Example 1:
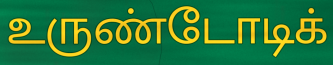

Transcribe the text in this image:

உருண்டோடிக்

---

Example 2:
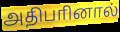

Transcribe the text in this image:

அதிபரினால்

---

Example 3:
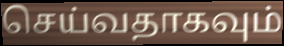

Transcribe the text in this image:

செய்வதாகவும்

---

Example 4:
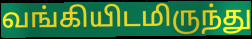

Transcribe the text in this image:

வங்கியிடமிருந்து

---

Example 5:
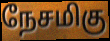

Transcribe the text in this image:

நேசமிகு